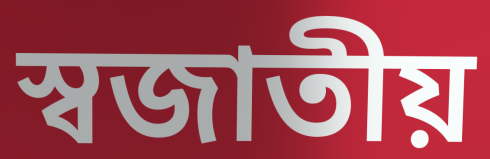
স্বজাতীয়